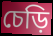
চেড়ি